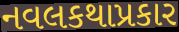
નવલકથાપ્રકાર